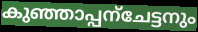
കുഞ്ഞാപ്പന്ചേട്ടനും